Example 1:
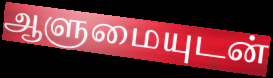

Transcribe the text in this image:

ஆளுமையுடன்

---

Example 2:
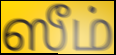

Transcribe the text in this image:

ஸீம்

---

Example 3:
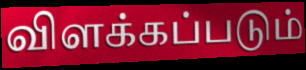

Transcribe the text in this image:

விளக்கப்படும்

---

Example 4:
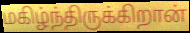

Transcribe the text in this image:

மகிழ்ந்திருக்கிறான்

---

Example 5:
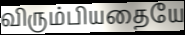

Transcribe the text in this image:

விரும்பியதையே